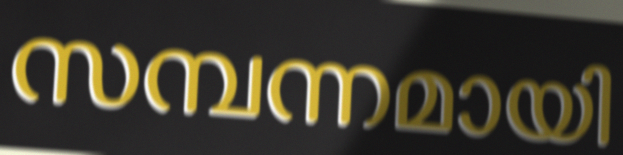
സമ്പന്നമായി